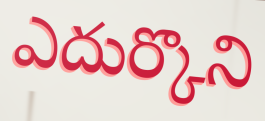
ఎదుర్కొని